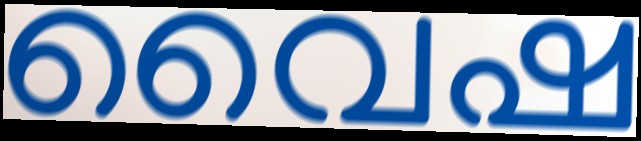
വൈഷ